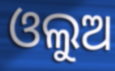
ଓଲୁଅ